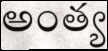
అంత్య